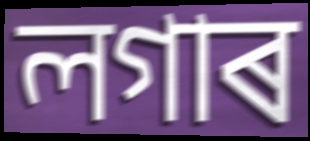
লগাৰ